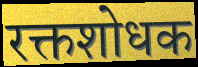
रक्तशोधक